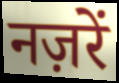
नज़रें